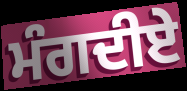
ਮੰਗਦੀਏ